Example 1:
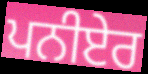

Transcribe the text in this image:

ਪਨੀਏਰ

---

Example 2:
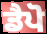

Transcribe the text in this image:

ਡੈਪੋ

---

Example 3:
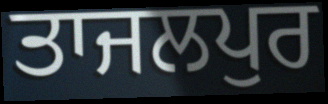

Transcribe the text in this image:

ਤਾਜਲਪੁਰ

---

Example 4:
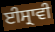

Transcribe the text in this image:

ਈਸ੍ਰਾਵੀ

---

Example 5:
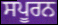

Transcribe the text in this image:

ਸਪੂਰਨ